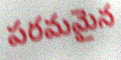
పరమమైన